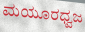
ಮಯೂರಧ್ವಜ